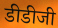
डीडीजी